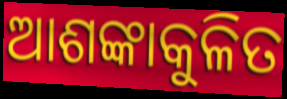
ଆଶଙ୍କାକୁଳିତ